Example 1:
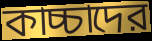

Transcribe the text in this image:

কাচ্চাদের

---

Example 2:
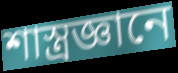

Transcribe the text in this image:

শাস্ত্রজ্ঞানে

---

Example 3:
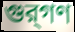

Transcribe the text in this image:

গুর্‌গণ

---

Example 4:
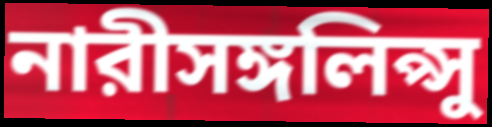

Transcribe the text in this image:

নারীসঙ্গলিপ্সু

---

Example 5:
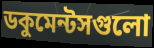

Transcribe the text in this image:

ডকুমেন্টসগুলো